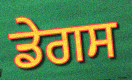
ਡੇਗਸ